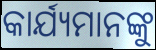
କାର୍ଯ୍ୟମାନଙ୍କୁ